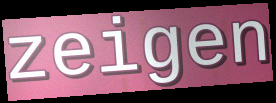
zeigen